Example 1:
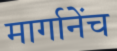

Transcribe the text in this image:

मार्गानेंच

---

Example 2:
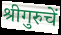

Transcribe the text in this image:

श्रीगुरुचें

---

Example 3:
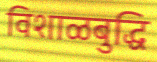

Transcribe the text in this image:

विशाळबुद्धि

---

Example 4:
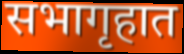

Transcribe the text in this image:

सभागृहात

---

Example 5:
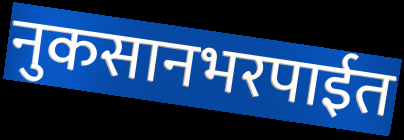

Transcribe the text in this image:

नुकसानभरपाईत